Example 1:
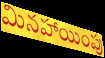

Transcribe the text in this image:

మినహాయింపు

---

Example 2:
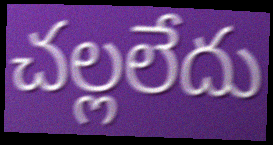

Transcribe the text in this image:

చల్లలేదు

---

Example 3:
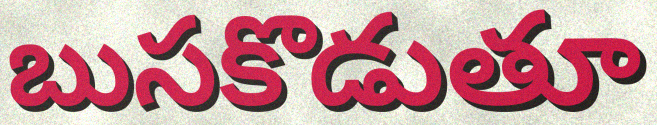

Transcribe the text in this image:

బుసకొడుతూ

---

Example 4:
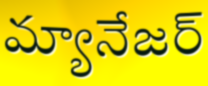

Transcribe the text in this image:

మ్యానేజర్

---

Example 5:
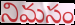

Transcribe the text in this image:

నిమసం